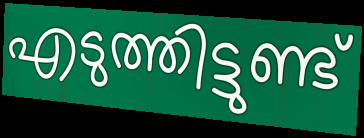
എടുത്തിട്ടുണ്ട്